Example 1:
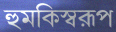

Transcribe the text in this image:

হুমকিস্বরূপ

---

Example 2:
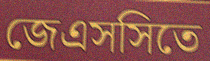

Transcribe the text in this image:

জেএসসিতে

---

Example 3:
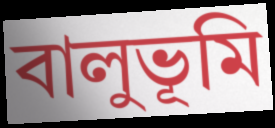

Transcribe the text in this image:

বালুভূমি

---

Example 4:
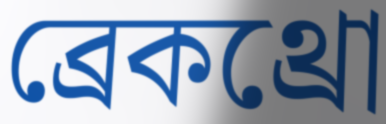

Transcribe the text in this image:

ব্রেকথ্রো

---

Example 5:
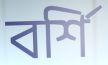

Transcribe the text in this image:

বর্শি